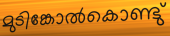
മുടിങ്കോൽകൊണ്ടു്